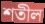
শতীল